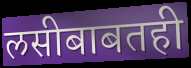
लसीबाबतही